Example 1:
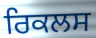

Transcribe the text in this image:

ਰਿਕਲਸ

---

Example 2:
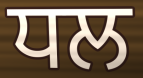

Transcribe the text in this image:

ਧਲ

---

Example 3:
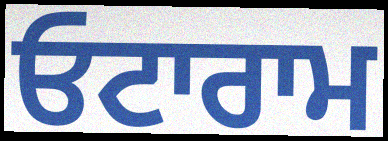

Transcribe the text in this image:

ਓਟਾਰਾਮ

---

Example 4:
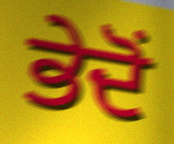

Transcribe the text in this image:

ਭੇਦੋਂ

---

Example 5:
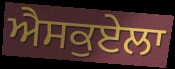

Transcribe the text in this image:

ਐਸਕੁਏਲਾ